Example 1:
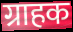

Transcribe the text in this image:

ग्राहक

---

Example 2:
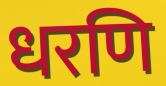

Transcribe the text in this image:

धरणि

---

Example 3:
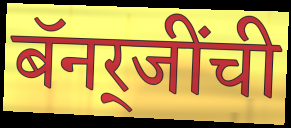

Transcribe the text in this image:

बॅनर्जींची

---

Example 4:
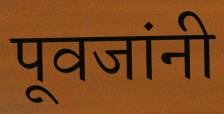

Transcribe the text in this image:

पूवजांनी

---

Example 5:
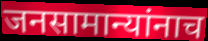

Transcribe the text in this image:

जनसामान्यांनाच